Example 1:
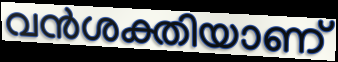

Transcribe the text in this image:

വൻശക്തിയാണ്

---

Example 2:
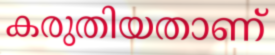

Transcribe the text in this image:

കരുതിയതാണ്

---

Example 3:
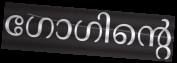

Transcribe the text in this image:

ഗോഗിന്റെ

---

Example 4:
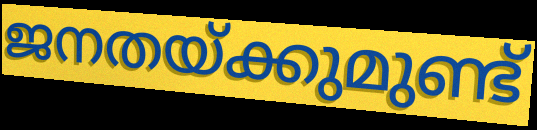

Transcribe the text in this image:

ജനതയ്ക്കുമുണ്ട്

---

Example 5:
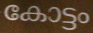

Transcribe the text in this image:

കോട്ടം